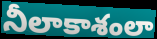
నీలాకాశంలా